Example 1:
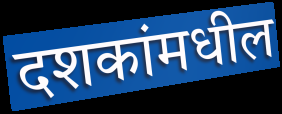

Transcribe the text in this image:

दशकांमधील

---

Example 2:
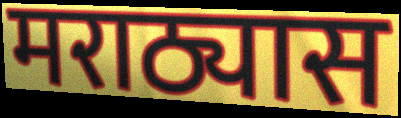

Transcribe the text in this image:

मराठ्यास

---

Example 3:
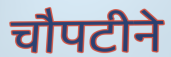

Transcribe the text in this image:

चौपटीने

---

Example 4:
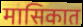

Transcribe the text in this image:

मासिकात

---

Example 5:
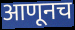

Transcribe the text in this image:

आणूनच